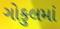
ગોકુલમાં